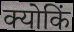
क्योकिं